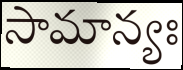
సామాన్యః